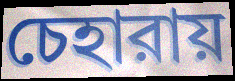
চেহারায়